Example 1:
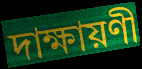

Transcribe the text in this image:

দাক্ষায়ণী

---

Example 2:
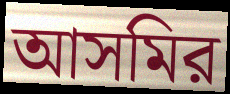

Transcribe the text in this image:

আসমির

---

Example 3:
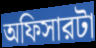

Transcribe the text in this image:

অফিসারটা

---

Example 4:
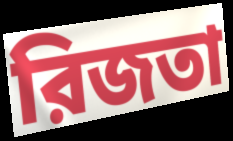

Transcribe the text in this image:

রিজতা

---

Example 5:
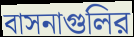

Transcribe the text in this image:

বাসনাগুলির